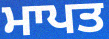
ਮਾਪਤ